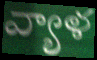
వ్యాళ